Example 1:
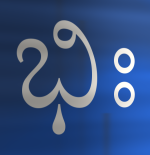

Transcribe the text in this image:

ಭಿಃ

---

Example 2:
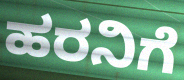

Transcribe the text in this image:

ಹರನಿಗೆ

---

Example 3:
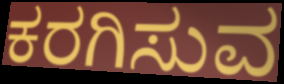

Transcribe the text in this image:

ಕರಗಿಸುವ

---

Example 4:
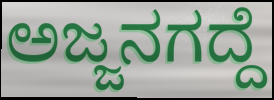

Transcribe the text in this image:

ಅಜ್ಜನಗದ್ದೆ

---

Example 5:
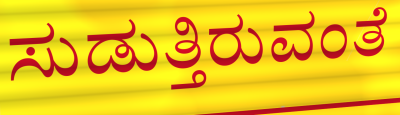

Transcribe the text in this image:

ಸುಡುತ್ತಿರುವಂತೆ